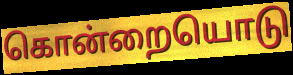
கொன்றையொடு